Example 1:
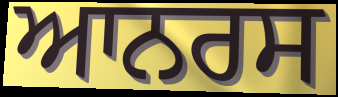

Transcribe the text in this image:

ਆਨਰਸ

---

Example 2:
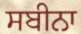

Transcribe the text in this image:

ਸਬੀਨਾ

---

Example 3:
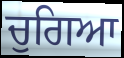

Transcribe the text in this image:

ਚੁਗਿਆ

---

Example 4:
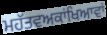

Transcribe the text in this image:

ਮਹੱਤਵਅਕਾਂਖਿਆਵਾਂ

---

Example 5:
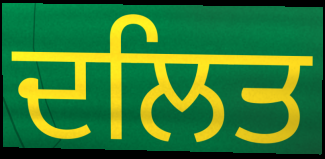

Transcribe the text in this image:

ਦਲਿਤ